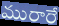
మురారే